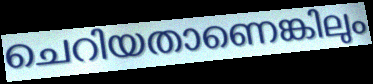
ചെറിയതാണെങ്കിലും